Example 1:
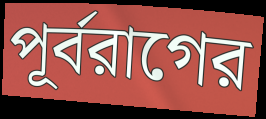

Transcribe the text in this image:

পূর্বরাগের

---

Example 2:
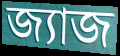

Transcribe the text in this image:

জ্যাজ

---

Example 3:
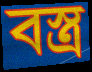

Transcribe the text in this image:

বস্ত্র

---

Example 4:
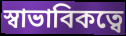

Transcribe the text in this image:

স্বাভাবিকত্বে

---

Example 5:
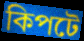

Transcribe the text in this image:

কিপটে